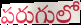
పరుగులో